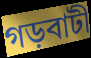
গড়বাটী